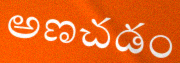
అణచడం